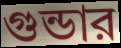
গুন্ডার